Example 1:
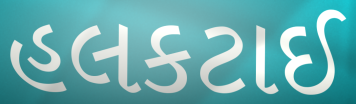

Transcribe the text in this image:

હલકટાઈ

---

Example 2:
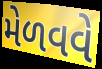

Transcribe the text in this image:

મેળવવે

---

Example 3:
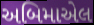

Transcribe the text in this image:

અબિમાએલ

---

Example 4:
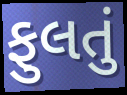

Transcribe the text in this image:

ફુલતું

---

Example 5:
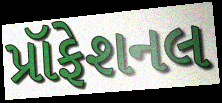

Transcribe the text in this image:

પ્રૉફેશનલ